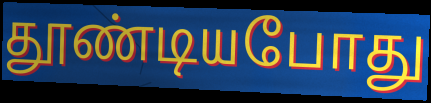
தூண்டியபோது